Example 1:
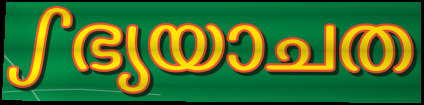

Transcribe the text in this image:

ഽഭ്യയാചത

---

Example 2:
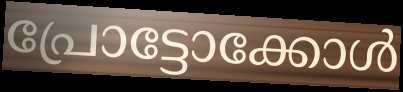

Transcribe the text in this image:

പ്രോട്ടോക്കോൾ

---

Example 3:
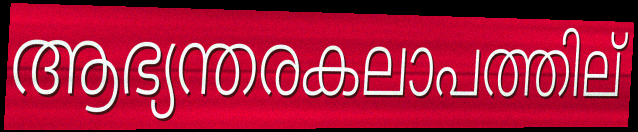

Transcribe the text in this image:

ആഭ്യന്തരകലാപത്തില്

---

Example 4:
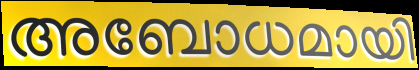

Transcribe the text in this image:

അബോധമായി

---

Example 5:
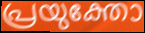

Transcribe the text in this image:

പ്രയുക്തോ